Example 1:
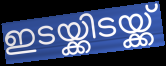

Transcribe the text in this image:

ഇടയ്ക്കിടയ്ക്ക്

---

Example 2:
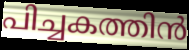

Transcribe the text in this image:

പിച്ചകത്തിൻ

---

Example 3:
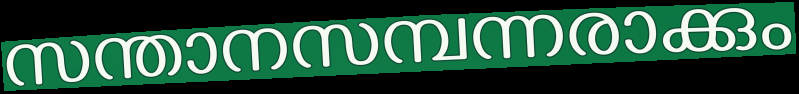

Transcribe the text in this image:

സന്താനസമ്പന്നരാക്കും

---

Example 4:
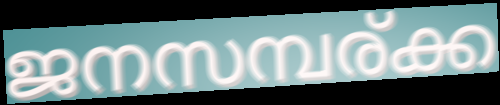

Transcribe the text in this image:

ജനസമ്പര്ക്ക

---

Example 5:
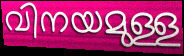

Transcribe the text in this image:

വിനയമുള്ള